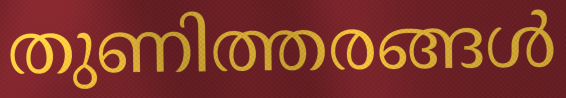
തുണിത്തരങ്ങൾ